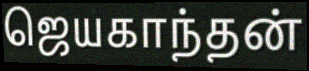
ஜெயகாந்தன்